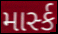
માર્સ્ક